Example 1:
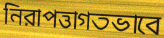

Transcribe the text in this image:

নিরাপত্তাগতভাবে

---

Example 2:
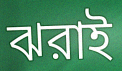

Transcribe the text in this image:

ঝরাই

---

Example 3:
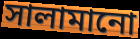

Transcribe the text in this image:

সালামানো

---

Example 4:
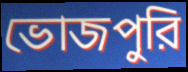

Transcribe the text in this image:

ভোজপুরি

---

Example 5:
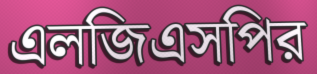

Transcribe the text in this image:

এলজিএসপির